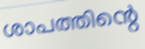
ശാപത്തിന്റെ